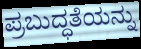
ಪ್ರಬುದ್ಧತೆಯನ್ನು